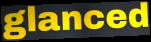
glanced